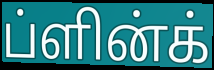
ப்ளின்க்